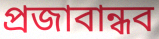
প্রজাবান্ধব